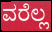
ವರೆಲ್ಲ